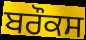
ਬਰੌਕਸ